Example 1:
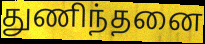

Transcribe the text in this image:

துணிந்தனை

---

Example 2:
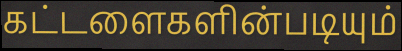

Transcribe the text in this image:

கட்டளைகளின்படியும்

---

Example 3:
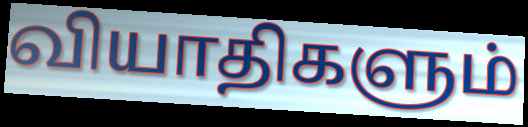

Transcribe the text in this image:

வியாதிகளும்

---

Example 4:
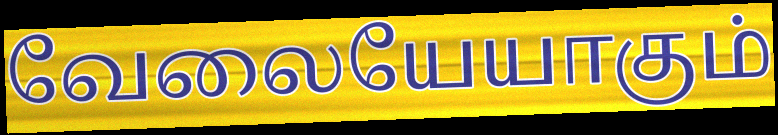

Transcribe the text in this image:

வேலையேயாகும்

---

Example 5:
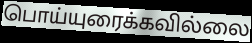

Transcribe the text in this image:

பொய்யுரைக்கவில்லை